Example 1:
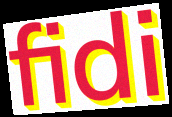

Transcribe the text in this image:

fidi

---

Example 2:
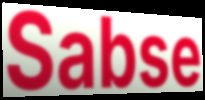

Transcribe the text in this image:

Sabse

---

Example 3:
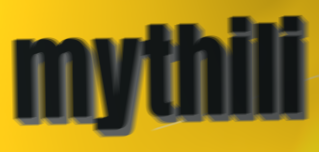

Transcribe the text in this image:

mythili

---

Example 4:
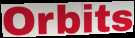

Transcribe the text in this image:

Orbits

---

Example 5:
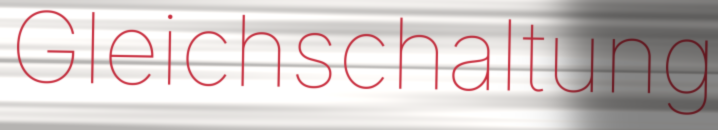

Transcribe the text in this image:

Gleichschaltung